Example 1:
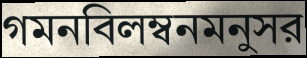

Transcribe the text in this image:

গমনবিলম্বনমনুসর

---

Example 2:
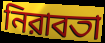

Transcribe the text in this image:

নিরাবতা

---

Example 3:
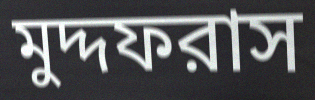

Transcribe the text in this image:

মুদ্দফরাস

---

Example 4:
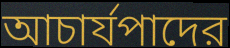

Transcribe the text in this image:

আচার্যপাদের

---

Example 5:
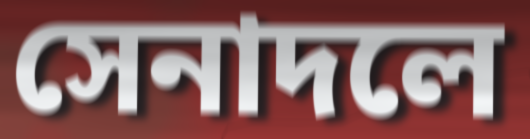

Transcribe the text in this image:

সেনাদলে